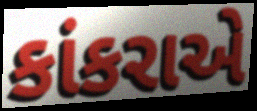
કાંકરાએ